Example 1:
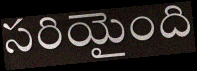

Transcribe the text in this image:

సరియైంది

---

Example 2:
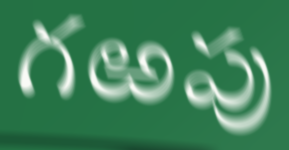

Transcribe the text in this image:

గఱపు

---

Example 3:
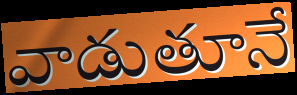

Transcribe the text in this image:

వాడుతూనే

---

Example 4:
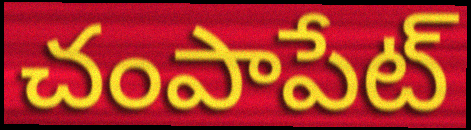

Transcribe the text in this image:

చంపాపేట్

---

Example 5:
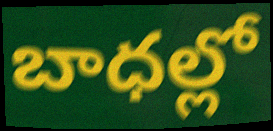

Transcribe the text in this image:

బాధల్లో